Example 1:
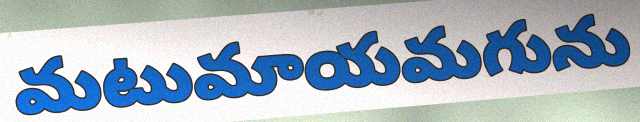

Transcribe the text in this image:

మటుమాయమగును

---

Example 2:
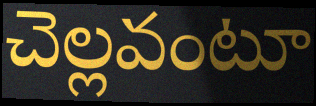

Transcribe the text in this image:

చెల్లవంటూ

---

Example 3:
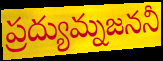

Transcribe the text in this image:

ప్రద్యుమ్నజననీ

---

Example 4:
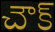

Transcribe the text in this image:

చౌక్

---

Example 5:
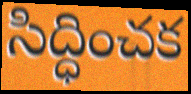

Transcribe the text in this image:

సిద్ధించక